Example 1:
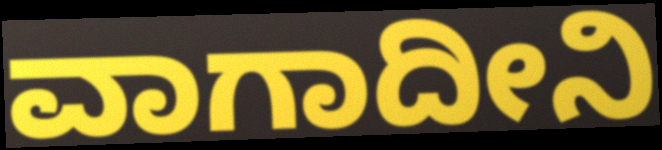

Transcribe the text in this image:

ವಾಗಾದೀನಿ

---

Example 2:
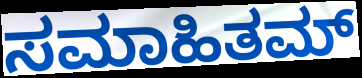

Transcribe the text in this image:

ಸಮಾಹಿತಮ್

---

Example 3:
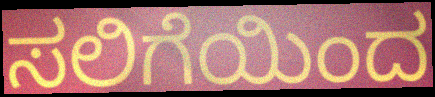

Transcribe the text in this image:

ಸಲಿಗೆಯಿಂದ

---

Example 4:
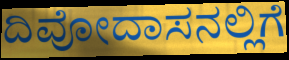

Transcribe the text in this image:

ದಿವೋದಾಸನಲ್ಲಿಗೆ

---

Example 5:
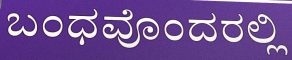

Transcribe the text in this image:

ಬಂಧವೊಂದರಲ್ಲಿ